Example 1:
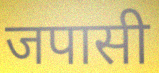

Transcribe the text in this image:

जपासी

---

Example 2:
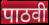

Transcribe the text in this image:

पाठवी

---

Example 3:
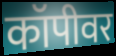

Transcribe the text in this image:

कॉपीवर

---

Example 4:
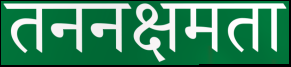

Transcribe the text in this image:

तननक्षमता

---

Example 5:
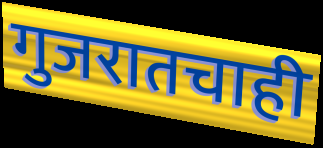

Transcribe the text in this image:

गुजरातचाही